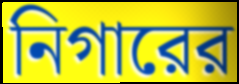
নিগারের